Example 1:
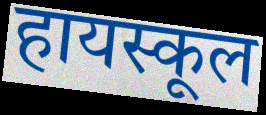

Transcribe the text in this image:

हायस्‍कूल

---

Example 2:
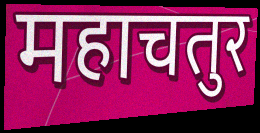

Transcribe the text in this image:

महाचतुर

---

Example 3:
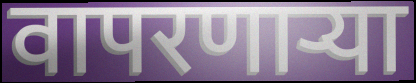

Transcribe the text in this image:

वापरणाऱ्या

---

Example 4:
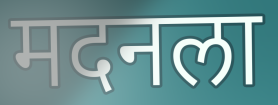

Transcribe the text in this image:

मदनला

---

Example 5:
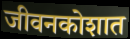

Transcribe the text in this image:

जीवनकोशात